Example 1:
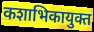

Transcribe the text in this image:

कशाभिकायुक्त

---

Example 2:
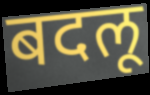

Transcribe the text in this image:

बदलू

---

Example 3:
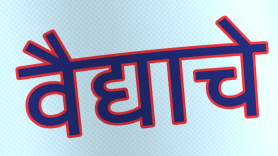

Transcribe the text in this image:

वैद्याचे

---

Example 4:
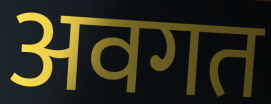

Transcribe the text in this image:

अवगत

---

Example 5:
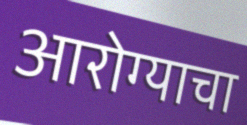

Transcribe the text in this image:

आरोग्याचा